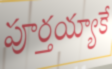
పూర్తయ్యాకే